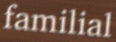
familial